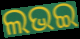
ଲଭଇ